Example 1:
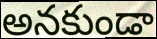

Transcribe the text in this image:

అనకుండా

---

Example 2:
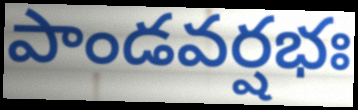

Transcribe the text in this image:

పాండవర్షభః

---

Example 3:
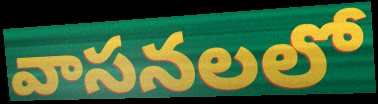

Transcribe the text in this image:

వాసనలలో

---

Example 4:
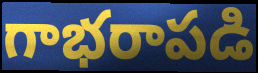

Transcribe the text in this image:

గాభరాపడి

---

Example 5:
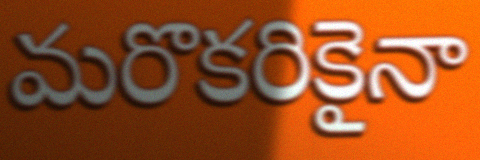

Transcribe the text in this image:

మరొకరికైనా